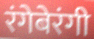
रंगेबेरंगी